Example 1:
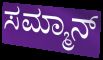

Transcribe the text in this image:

ಸಮ್ಮಾನ್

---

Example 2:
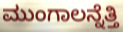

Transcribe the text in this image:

ಮುಂಗಾಲನ್ನೆತ್ತಿ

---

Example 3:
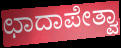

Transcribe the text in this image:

ಛಾದಾಪೇತ್ವಾ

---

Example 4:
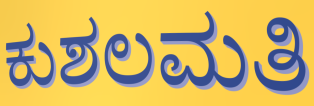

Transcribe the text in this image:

ಕುಶಲಮತಿ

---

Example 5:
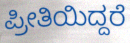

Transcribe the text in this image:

ಪ್ರೀತಿಯಿದ್ದರೆ